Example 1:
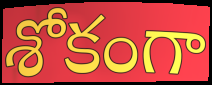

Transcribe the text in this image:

శోకంగా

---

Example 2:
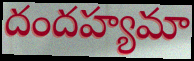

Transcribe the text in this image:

దందహ్యమా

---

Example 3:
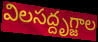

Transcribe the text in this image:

విలసద్దృగ్జాల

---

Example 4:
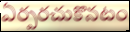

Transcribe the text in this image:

ఏర్పరచుకొనటం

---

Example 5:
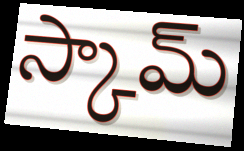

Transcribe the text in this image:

స్కామ్